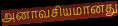
அனாவசியமானது